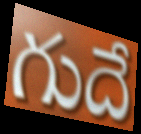
గుదే